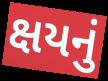
ક્ષયનું